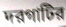
দরগাটির